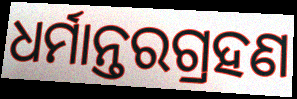
ଧର୍ମାନ୍ତରଗ୍ରହଣ